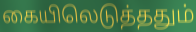
கையிலெடுத்ததும்